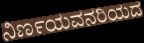
ನಿರ್ಣಯವನರಿಯದ